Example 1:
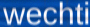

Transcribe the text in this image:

wechti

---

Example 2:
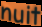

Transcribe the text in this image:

nuit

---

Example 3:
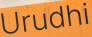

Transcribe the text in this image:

Urudhi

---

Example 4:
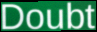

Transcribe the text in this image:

Doubt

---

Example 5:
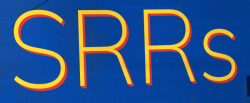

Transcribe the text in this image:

SRRs